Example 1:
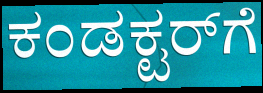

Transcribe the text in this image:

ಕಂಡಕ್ಟರ್‌ಗೆ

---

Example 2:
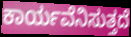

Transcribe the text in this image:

ಕಾರ್ಯವೆನಿಸುತ್ತದೆ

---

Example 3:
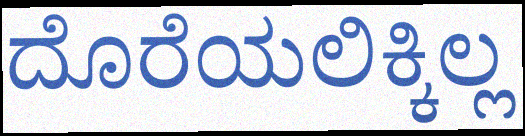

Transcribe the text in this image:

ದೊರೆಯಲಿಕ್ಕಿಲ್ಲ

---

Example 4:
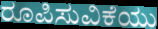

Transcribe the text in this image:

ರೂಪಿಸುವಿಕೆಯು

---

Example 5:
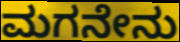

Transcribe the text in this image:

ಮಗನೇನು